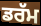
ਡਰੱਮ